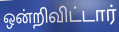
ஒன்றிவிட்டார்